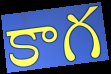
కాగ